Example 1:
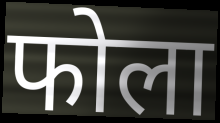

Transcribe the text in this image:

फोला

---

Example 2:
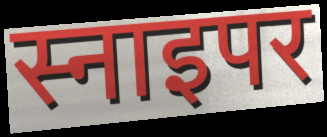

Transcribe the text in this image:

स्नाइपर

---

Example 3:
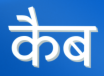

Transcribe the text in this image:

कैब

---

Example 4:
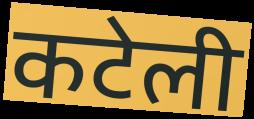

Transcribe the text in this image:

कटेली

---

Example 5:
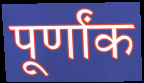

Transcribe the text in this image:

पूर्णांक